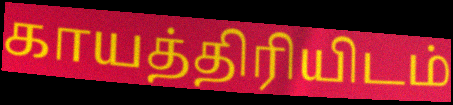
காயத்திரியிடம்